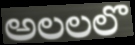
అలలలొ